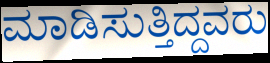
ಮಾಡಿಸುತ್ತಿದ್ದವರು